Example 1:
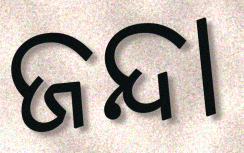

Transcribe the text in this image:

ଜନ୍ଦା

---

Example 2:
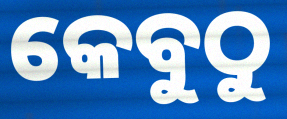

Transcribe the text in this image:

କେବୁଠୁ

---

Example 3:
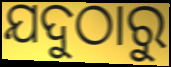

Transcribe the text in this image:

ଯଦୁଠାରୁ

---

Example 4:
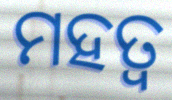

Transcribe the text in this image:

ମହତ୍ବ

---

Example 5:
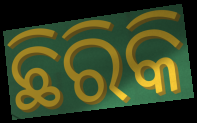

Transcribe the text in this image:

ଛିରିକି